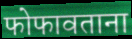
फोफावताना